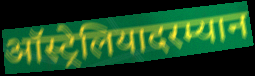
ऑस्ट्रेलियादरम्यान